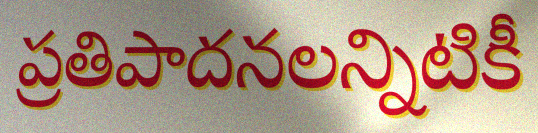
ప్రతిపాదనలన్నిటికీ